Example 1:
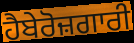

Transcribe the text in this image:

ਹੈਬੇਰੋਜ਼ਗਾਰੀ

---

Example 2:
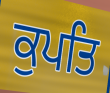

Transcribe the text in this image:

ਕੁਪਤਿ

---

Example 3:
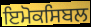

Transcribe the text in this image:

ਇਮੋਕਸਿਬਲ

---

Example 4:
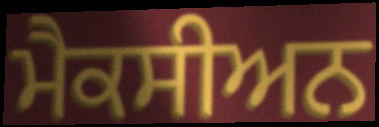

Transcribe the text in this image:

ਮੈਕਸੀਅਨ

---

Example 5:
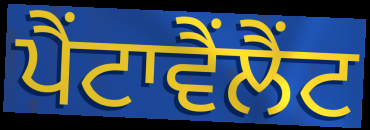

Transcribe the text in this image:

ਪੈਂਟਾਵੈਂਲੈਂਟ